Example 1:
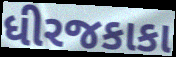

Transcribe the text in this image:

ધીરજકાકા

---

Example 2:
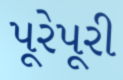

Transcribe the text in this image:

પૂરેપૂરી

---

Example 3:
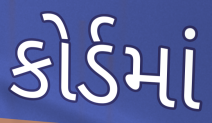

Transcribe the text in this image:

કોર્ડમાં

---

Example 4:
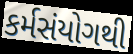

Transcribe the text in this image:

કર્મસંયોગથી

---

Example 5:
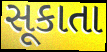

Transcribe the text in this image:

સૂકાતા